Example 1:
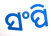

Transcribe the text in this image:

ସଂପି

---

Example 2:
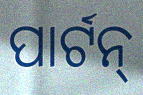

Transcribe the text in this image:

ପାର୍ଟନ୍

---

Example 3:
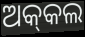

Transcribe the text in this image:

ଅକ୍‌କଲ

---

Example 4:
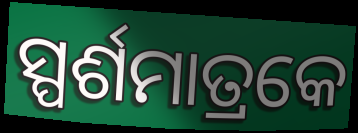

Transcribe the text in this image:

ସ୍ପର୍ଶମାତ୍ରକେ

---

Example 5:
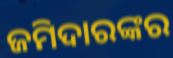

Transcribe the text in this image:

ଜମିଦାରଙ୍କର